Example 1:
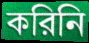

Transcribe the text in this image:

করিনি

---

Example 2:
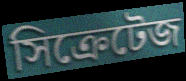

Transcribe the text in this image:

সিক্রেটেজ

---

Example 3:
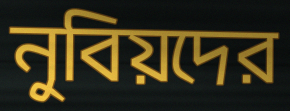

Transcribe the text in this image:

নুবিয়দের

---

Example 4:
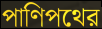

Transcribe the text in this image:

পাণিপথের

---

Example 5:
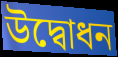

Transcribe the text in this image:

উদ্বোধন